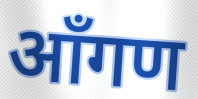
आँगण